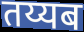
तय्यब